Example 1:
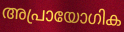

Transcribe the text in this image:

അപ്രായോഗിക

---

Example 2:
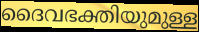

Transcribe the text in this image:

ദൈവഭക്തിയുമുള്ള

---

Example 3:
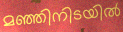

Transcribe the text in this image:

മഞ്ഞിനിടയിൽ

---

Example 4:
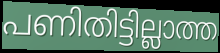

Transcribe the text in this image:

പണിതിട്ടില്ലാത്ത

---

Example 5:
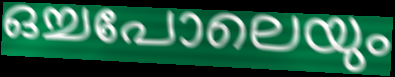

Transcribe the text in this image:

ഒച്ചപോലെയും